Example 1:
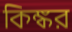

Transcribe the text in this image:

কিঙ্কর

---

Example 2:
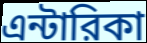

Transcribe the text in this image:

এন্টারিকা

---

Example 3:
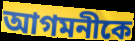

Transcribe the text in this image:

আগমনীকে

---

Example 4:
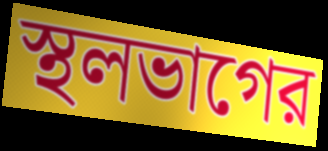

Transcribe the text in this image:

স্থলভাগের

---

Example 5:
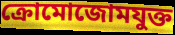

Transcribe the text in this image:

ক্রোমোজোমযুক্ত